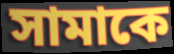
সামাকে